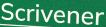
Scrivener